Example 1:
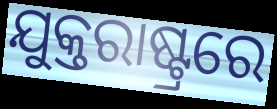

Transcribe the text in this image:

ଯୁକ୍ତରାଷ୍ଟ୍ରରେ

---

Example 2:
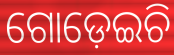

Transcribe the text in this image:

ଗୋଡ଼େଇଚି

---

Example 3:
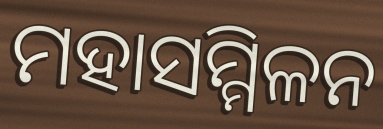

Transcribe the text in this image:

ମହାସମ୍ମିଳନ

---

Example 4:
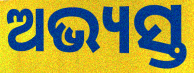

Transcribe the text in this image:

ଅଭ୍ୟସ୍ତ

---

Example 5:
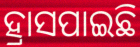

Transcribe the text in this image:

ହ୍ରାସପାଇଛି